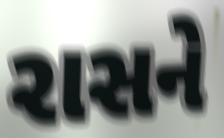
રાસને